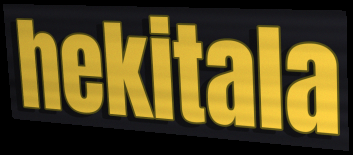
hekitala